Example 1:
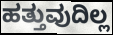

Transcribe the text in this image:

ಹತ್ತುವುದಿಲ್ಲ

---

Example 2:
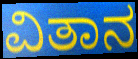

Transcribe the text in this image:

ವಿತಾನ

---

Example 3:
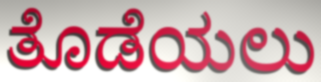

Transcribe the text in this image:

ತೊಡೆಯಲು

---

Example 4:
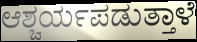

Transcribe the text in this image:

ಆಶ್ಚರ್ಯಪಡುತ್ತಾಳೆ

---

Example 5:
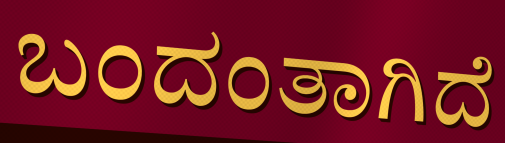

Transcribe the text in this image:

ಬಂದಂತಾಗಿದೆ